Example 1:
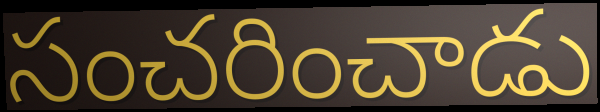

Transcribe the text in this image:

సంచరించాడు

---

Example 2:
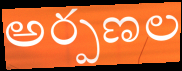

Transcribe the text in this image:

అర్పణల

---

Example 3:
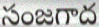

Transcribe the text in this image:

సంజగాద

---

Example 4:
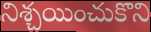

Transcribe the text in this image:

నిశ్చయించుకొని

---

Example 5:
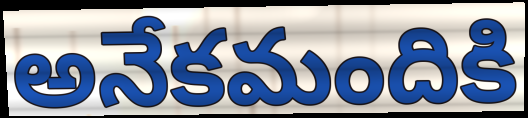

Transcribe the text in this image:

అనేకమందికి